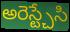
అరెస్ట్చేసి